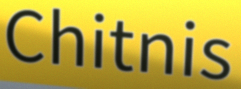
Chitnis